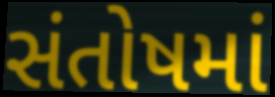
સંતોષમાં